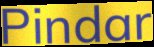
Pindar